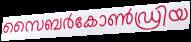
സൈബർകോൺഡ്രിയ